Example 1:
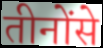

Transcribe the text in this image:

तीनोंसे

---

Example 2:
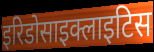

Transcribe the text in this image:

इरिडोसाइक्लाइटिस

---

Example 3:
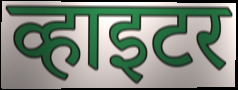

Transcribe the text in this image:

व्हाइटर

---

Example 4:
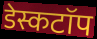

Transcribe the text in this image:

डेस्कटॉप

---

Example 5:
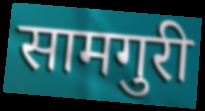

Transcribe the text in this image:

सामगुरी